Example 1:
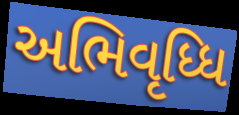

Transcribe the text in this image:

અભિવૃધ્ધિ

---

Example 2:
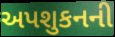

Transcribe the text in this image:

અપશુકનની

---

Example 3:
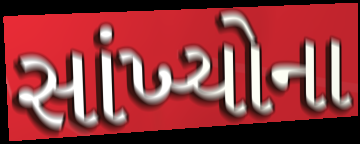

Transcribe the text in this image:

સાંખ્યોના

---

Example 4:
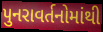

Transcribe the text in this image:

પુનરાવર્તનોમાંથી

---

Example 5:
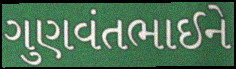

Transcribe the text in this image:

ગુણવંતભાઈને